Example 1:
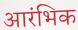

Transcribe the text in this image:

आरंभिक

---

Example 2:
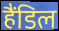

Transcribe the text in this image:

हैंडिल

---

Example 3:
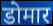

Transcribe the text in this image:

डोमार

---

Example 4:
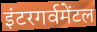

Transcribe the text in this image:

इंटरगर्वमेंटल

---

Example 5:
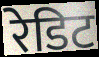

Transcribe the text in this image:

रेडिट